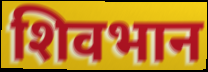
शिवभान